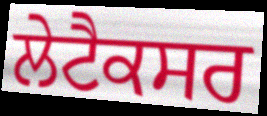
ਲੇਟੈਕਸਰ